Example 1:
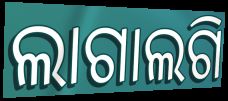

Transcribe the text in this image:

ଲାଗାଲଗି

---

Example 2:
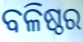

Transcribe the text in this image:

ବଳିଷ୍ଠର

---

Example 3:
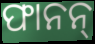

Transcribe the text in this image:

ଫାନନ୍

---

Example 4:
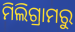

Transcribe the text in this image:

ମିଲିଗ୍ରାମରୁ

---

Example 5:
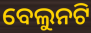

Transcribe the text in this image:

ବେଲୁନଟି